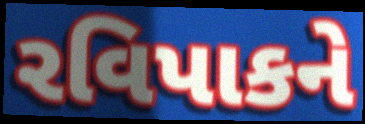
રવિપાકને